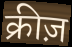
क्रीज़